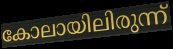
കോലായിലിരുന്ന്